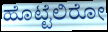
ಹೊಟ್ಟೆಲಿರೋ